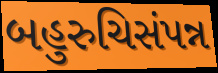
બહુરુચિસંપન્ન